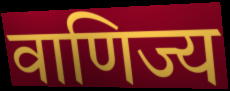
वाणिज्य